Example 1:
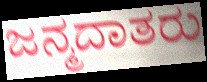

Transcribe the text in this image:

ಜನ್ಮದಾತರು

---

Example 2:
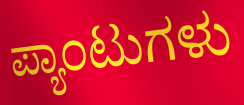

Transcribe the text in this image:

ಪ್ಯಾಂಟುಗಳು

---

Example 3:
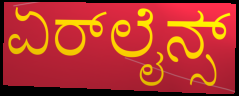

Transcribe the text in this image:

ಏರ್‌ಲೈನ್ಸ್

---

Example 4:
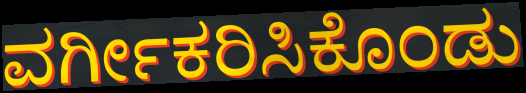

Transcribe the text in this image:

ವರ್ಗೀಕರಿಸಿಕೊಂಡು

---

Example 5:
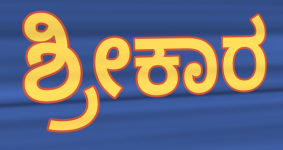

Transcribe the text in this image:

ಶ್ರೀಕಾರ